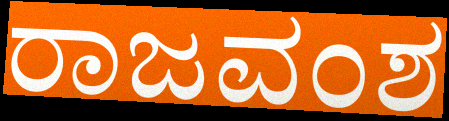
ರಾಜವಂಶ